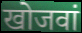
खोजवां